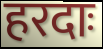
हरदाः